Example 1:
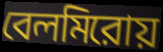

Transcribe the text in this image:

বেলমিরোয়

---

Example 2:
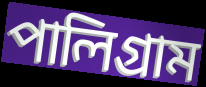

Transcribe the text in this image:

পালিগ্রাম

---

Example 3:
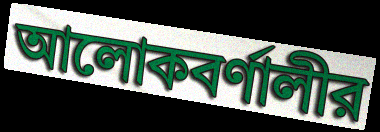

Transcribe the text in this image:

আলোকবর্ণালীর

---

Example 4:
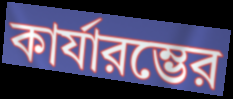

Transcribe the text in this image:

কার্যারম্ভের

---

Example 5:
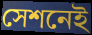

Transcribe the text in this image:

সেশনেই